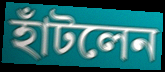
হাঁটলেন